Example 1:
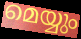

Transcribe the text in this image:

മെയ്യും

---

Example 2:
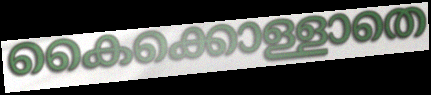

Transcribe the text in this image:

കൈക്കൊള്ളാതെ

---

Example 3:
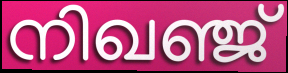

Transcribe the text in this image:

നിഖഞ്ജ്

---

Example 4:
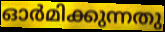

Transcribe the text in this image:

ഓർമിക്കുന്നതു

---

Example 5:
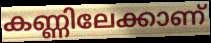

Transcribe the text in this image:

കണ്ണിലേക്കാണ്